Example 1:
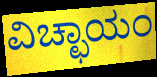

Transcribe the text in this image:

ವಿಚ್ಛಾಯಂ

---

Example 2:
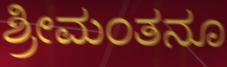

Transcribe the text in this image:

ಶ್ರೀಮಂತನೂ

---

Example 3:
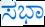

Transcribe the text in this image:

ಸಭಾ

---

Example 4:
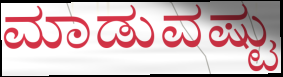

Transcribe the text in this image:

ಮಾಡುವಷ್ಟು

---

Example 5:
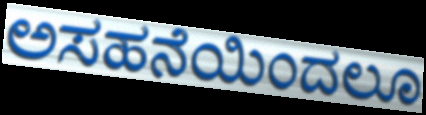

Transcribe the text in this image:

ಅಸಹನೆಯಿಂದಲೂ